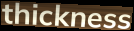
thickness